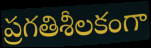
ప్రగతిశీలకంగా